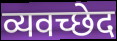
व्यवच्छेद